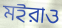
মইরাও